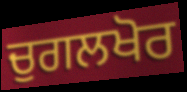
ਚੁਗਲਖੋਰ